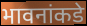
भावनांकडे